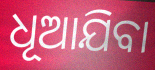
ଧୂଆଯିବା